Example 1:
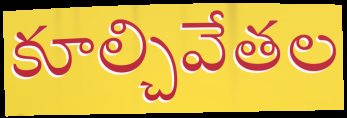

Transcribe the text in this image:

కూల్చివేతల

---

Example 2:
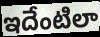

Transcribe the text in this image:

ఇదేంటిలా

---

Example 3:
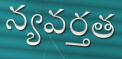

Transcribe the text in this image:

న్యవర్తత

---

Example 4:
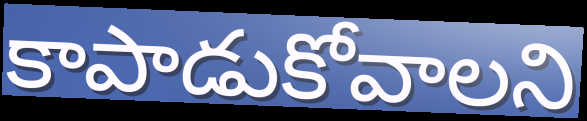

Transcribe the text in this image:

కాపాడుకోవాలని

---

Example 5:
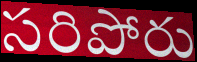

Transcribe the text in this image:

సరిపోరు